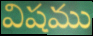
విషము